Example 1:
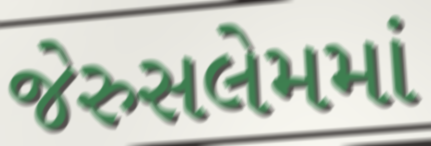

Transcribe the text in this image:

જેરુસલેમમાં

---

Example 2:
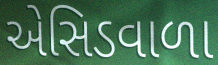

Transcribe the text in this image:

એસિડવાળા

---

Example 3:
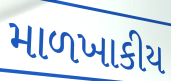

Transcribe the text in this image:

માળખાકીય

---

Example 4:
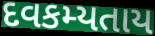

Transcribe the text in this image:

દવકમ્યતાય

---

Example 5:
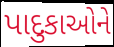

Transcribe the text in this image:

પાદુકાઓને